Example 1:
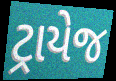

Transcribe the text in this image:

ટ્રાયેજ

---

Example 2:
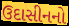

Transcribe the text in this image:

ઉદાસીનનો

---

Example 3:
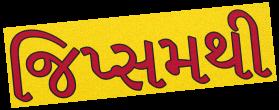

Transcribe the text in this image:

જિપ્સમથી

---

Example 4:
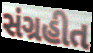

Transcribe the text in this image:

સંગ્રહીત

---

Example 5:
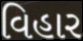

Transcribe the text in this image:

વિહાર